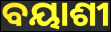
ବୟାଶୀ